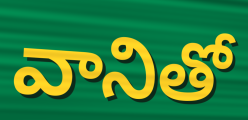
వానితో